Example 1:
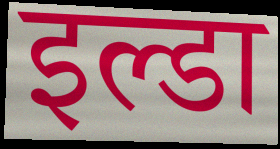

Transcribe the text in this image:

इल्डा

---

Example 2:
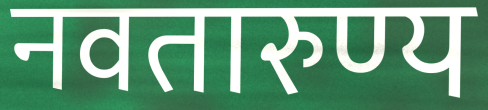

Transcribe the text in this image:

नवतारुण्य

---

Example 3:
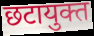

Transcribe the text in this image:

छटायुक्त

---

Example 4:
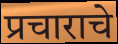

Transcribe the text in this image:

प्रचाराचे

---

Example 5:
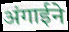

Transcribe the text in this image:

अंगाईने